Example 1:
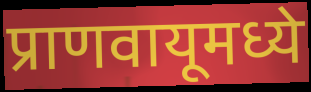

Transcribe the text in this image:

प्राणवायूमध्ये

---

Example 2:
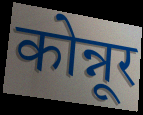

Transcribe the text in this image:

कोन्नूर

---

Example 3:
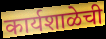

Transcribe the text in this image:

कार्यशाळेची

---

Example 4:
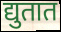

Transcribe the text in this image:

द्युतात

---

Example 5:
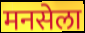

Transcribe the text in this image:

मनसेला